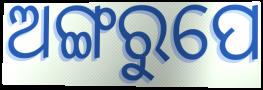
ଅଙ୍ଗରୁପେ